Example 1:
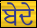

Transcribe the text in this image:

ਬੇਦੇ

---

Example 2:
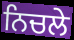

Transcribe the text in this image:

ਨਿਚਲੇ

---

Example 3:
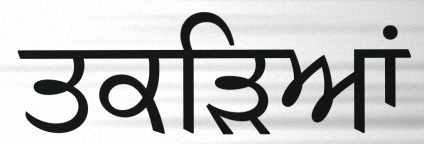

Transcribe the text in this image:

ਤਕੜਿਆਂ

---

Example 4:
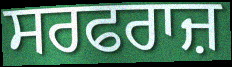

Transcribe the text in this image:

ਸਰਫਰਾਜ਼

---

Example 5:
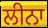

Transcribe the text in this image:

ਲੀਨਾ